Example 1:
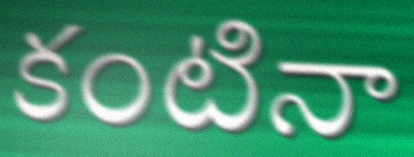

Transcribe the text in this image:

కంటినా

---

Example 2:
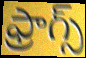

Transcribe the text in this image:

ఫ్రాగ్స్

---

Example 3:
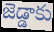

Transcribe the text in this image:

జెడ్డాకు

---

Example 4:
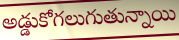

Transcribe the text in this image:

అడ్డుకోగలుగుతున్నాయి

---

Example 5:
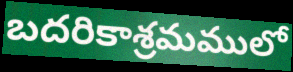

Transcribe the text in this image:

బదరికాశ్రమములో